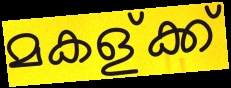
മകള്ക്ക്